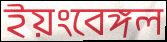
ইয়ংবেঙ্গল